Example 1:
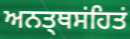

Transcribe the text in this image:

ਅਨਤ੍ਥਸਂਹਿਤਂ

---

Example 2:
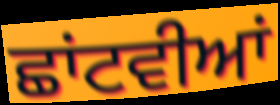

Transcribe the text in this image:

ਛਾਂਟਵੀਆਂ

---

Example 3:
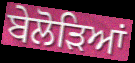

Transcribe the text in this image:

ਬੇਲੋੜਿਆਂ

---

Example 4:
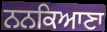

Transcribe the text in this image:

ਨਨਕਿਆਣਾ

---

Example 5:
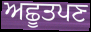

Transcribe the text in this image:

ਅਛੂਤਪਣ